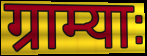
ग्राम्याः